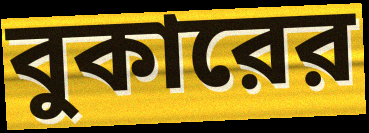
বুকারের